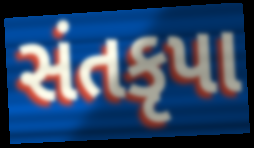
સંતકૃપા